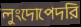
লুংদোপেদরি